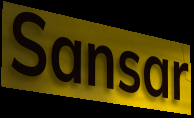
Sansar